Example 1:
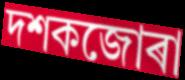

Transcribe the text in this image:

দশকজোৰা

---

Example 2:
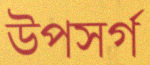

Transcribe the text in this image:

উপসৰ্গ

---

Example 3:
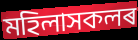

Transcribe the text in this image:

মহিলাসকলৰ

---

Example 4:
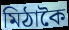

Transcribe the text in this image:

মিঠাকৈ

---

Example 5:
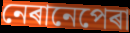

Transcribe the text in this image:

নেৰানেপেৰা